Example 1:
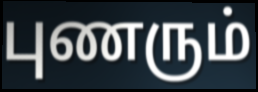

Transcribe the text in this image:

புணரும்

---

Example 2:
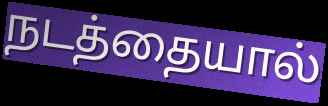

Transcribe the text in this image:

நடத்தையால்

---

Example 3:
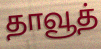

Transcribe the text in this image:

தாவூத்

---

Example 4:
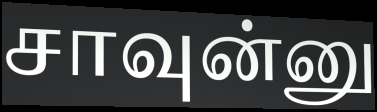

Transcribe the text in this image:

சாவுன்னு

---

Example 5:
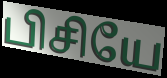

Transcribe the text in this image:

பிசியே